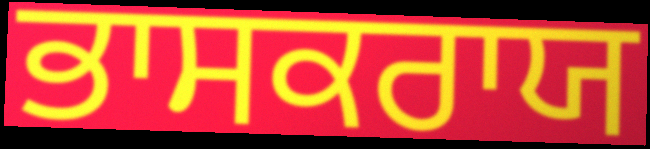
ਭਾਸਕਰਾਯ